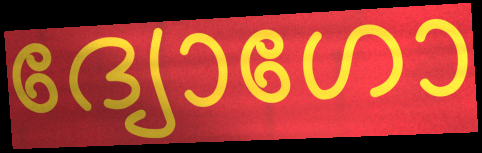
ദ്യോഗോ